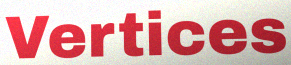
Vertices